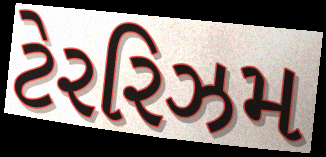
ટેરરિઝમ